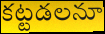
కట్టడలనూ